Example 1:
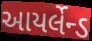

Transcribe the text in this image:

આયર્લેન્ડ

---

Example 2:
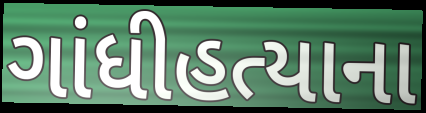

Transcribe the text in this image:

ગાંધીહત્યાના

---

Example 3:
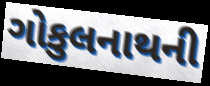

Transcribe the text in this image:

ગોકુલનાથની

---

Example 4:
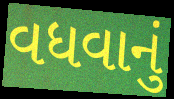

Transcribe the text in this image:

વધવાનું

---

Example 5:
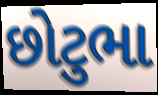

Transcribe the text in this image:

છોટુભા